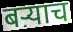
बऱ्‍याच